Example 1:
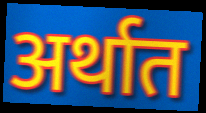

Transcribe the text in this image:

अर्थात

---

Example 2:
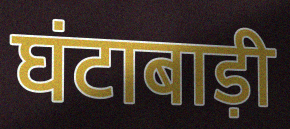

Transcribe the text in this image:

घंटाबाड़ी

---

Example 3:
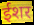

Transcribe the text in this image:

ईशर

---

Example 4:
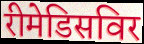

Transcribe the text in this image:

रीमेडिसविर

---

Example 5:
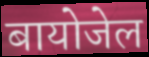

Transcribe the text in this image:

बायोजेल